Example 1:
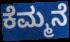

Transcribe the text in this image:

ಕೆಮ್ಮನೆ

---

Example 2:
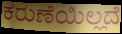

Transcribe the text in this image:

ಕರುಣೆಯಿಲ್ಲದೆ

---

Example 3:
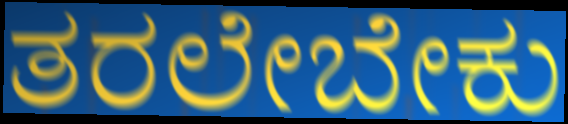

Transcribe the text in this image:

ತರಲೇಬೇಕು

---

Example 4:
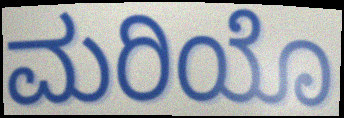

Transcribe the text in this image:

ಮರಿಯೊ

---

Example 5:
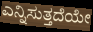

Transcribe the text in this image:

ಎನ್ನಿಸುತ್ತದೆಯೇ